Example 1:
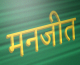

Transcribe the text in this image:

मनजीत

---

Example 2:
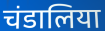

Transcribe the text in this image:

चंडालिया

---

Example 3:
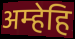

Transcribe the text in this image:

अम्हेहि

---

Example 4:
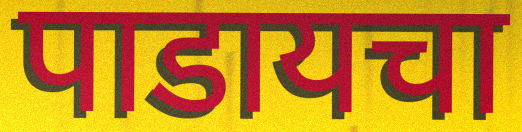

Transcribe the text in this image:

पाडायचा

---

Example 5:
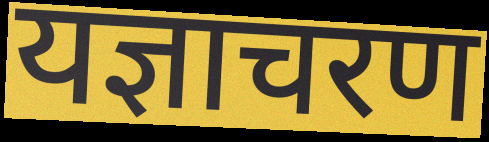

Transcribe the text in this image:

यज्ञाचरण